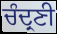
ਚੰਦ੍ਰਣੀ